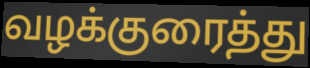
வழக்குரைத்து